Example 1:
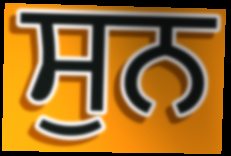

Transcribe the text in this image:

ਸੁਨ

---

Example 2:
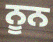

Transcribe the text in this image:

ਨੂਨ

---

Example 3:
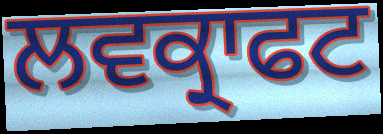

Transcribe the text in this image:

ਲਵਕ੍ਰਾਫਟ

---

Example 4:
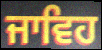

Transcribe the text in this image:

ਜਾਵਿਹ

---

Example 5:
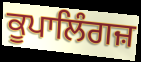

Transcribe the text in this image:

ਕੂਪਾਲਿੰਗਜ਼